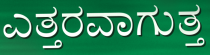
ಎತ್ತರವಾಗುತ್ತ